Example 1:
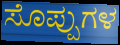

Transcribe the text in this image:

ಸೊಪ್ಪುಗಳ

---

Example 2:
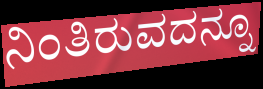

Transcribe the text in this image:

ನಿಂತಿರುವದನ್ನೂ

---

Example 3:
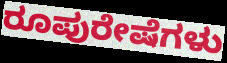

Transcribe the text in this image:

ರೂಪುರೇಷೆಗಳು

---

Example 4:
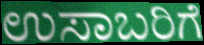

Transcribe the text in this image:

ಉಸಾಬರಿಗೆ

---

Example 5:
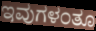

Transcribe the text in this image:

ಇವುಗಳಂತೂ